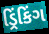
ડ્રિંકિંગ